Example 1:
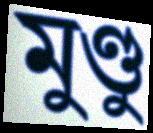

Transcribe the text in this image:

মুণ্ডু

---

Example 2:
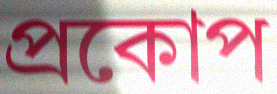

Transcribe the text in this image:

প্ৰকোপ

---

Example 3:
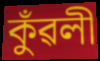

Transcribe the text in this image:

কুঁৱলী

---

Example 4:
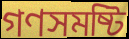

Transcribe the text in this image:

গণসমষ্টি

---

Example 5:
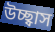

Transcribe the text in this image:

উচ্ছ্বাস